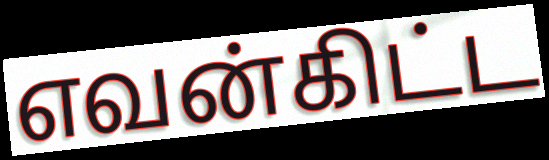
எவன்கிட்ட